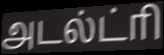
அடல்ட்ரி